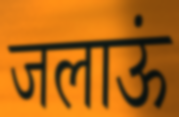
जलाऊं